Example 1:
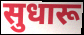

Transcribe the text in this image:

सुधारू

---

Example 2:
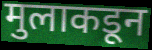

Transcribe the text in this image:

मुलाकडून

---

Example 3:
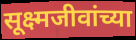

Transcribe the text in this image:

सूक्ष्मजीवांच्या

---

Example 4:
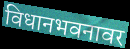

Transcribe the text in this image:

विधानभवनावर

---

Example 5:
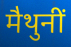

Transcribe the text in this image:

मैथुनीं